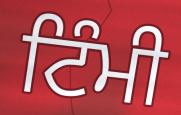
ਟਿੰਮੀ